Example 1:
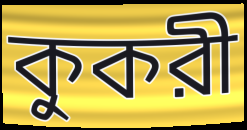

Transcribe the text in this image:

কুকরী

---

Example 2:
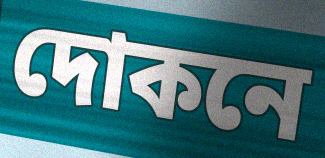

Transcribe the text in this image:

দোকনে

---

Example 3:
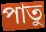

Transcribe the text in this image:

পাতু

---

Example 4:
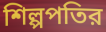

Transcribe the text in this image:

শিল্পপতির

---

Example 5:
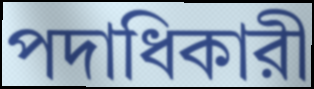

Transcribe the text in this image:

পদাধিকারী